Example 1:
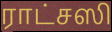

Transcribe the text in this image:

ராட்சஸி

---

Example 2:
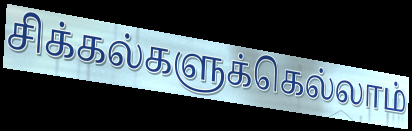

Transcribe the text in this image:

சிக்கல்களுக்கெல்லாம்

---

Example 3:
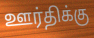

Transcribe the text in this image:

ஊர்திக்கு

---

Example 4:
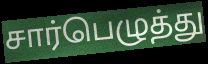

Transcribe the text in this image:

சார்பெழுத்து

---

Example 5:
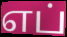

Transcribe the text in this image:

எப்